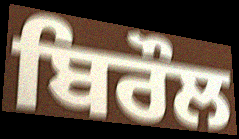
ਬਿਰੌਲ